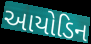
આયોડિન